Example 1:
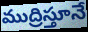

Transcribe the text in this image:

ముద్రిస్తూనే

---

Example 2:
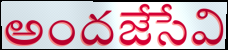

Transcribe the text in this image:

అందజేసేవి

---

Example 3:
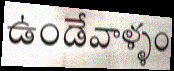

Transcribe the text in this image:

ఉండేవాళ్ళం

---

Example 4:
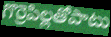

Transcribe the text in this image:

గొర్రెపిల్లతోపాటు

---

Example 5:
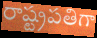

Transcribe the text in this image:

రాష్ట్రపతిగా